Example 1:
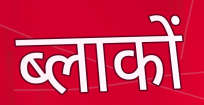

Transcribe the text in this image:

ब्लाकों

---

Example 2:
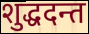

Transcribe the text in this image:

शुद्धदन्त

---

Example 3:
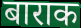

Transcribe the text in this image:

बाराक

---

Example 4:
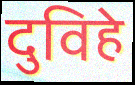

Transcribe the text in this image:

दुविहे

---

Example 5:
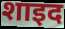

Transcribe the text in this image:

शाइद